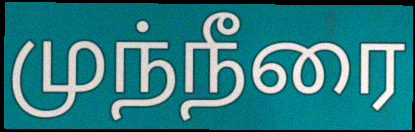
முந்நீரை